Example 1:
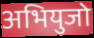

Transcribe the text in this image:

अभियुजो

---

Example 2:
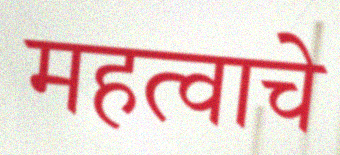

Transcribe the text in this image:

महत्वाचे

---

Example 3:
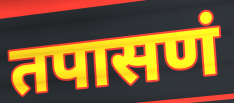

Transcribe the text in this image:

तपासणं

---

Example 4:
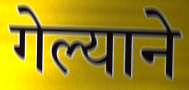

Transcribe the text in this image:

गेल्‍याने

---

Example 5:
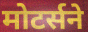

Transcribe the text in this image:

मोटर्सने